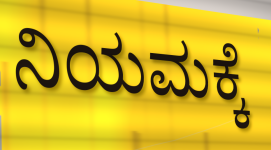
ನಿಯಮಕ್ಕೆ